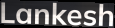
Lankesh